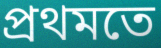
প্ৰথমতে